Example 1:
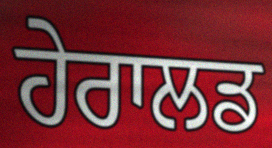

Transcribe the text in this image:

ਹੇਰਾਲਡ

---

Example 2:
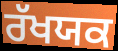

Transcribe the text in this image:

ਰੱਖਯਕ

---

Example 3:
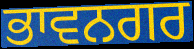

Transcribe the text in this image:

ਭਾਵਨਗਰ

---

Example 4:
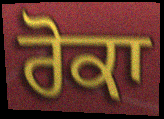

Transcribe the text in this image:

ਰੋਕਾ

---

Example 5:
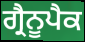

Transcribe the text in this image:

ਗ੍ਰੈਨੂਪੈਕ